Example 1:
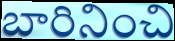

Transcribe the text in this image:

బారినించి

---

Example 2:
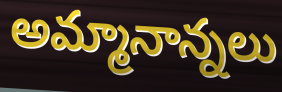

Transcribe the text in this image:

అమ్మానాన్నలు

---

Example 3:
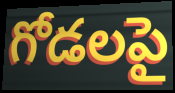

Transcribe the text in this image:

గోడలపై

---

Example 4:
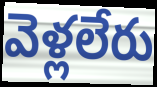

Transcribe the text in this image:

వెళ్లలేరు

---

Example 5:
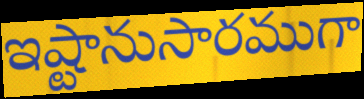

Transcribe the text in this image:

ఇష్టానుసారముగా